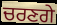
ਚਰਣਗੇ